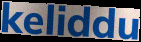
keliddu